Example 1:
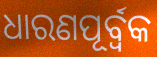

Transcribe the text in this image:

ଧାରଣପୂର୍ବ୍ବକ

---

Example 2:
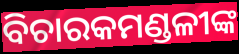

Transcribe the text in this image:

ବିଚାରକମଣ୍ଡଳୀଙ୍କ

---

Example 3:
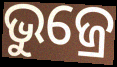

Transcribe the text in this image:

ଭୁଜ୍ରେ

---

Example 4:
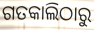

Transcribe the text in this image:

ଗତକାଲିଠାରୁ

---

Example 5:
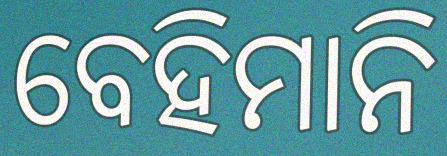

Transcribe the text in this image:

ବେହିମାନି